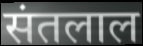
संतलाल